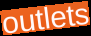
outlets